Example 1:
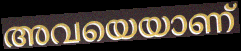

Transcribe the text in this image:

അവയെയാണ്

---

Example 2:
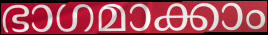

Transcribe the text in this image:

ഭാഗമാക്കാം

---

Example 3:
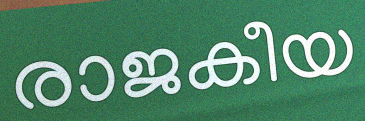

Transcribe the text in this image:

രാജകീയ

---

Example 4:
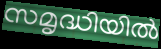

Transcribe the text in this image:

സമൃദ്ധിയിൽ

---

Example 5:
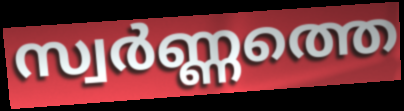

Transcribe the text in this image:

സ്വർണ്ണത്തെ